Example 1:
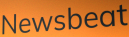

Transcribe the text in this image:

Newsbeat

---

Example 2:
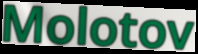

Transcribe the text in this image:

Molotov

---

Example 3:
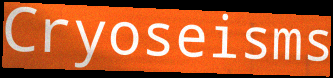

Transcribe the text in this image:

Cryoseisms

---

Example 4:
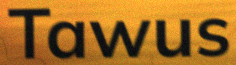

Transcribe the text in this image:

Tawus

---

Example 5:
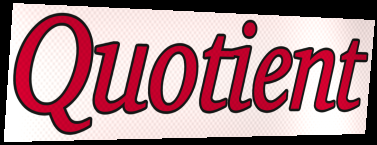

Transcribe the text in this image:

Quotient